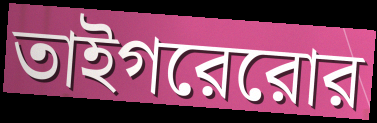
তাইগরেরোর